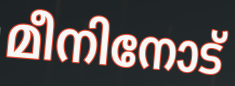
മീനിനോട്